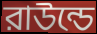
রাউন্ডে